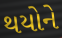
થયોને